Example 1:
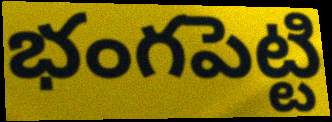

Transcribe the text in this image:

భంగపెట్టి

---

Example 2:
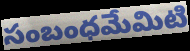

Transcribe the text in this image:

సంబంధమేమిటి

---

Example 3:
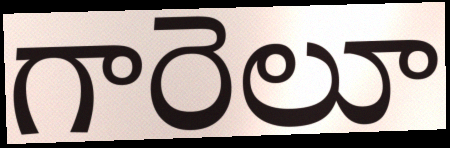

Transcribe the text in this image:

గారెలూ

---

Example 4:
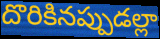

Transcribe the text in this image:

దొరికినప్పుడల్లా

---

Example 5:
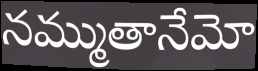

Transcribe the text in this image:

నమ్ముతానేమో